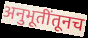
अनुभूतींतूनच